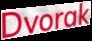
Dvorak